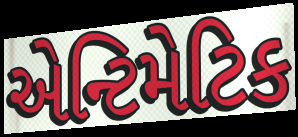
એન્ટિમેટિક